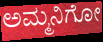
ಅಮ್ಮನಿಗೋ